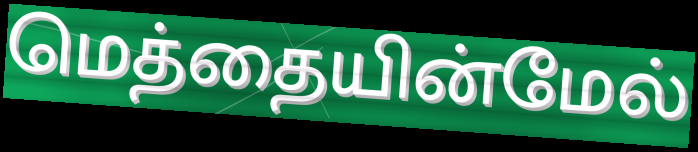
மெத்தையின்மேல்